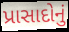
પ્રાસાદોનું